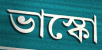
ভাস্কো